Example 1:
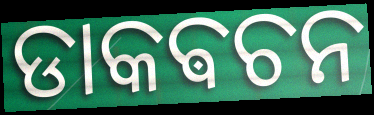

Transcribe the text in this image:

ଡାକଵଚନ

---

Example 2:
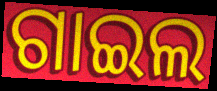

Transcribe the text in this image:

ଗାଇଲ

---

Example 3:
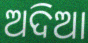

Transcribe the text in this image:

ଅଦିଆ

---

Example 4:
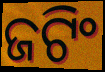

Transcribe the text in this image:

ଜଟିଂ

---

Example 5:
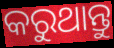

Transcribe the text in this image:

କରୁଥାନ୍ତୁ